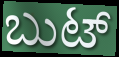
ಬುಟ್